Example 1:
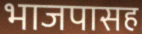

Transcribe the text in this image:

भाजपासह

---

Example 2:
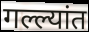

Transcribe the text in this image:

गल्ल्यांत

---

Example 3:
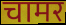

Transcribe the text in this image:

चामर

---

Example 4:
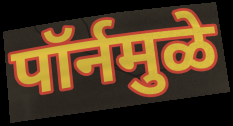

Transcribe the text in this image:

पॉर्नमुळे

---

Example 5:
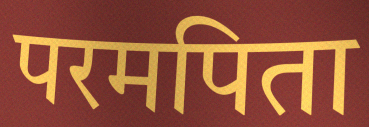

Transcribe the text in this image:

परमपिता